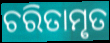
ଚରିତାମୃତ